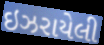
ઇઝરાયેલી